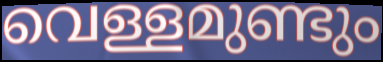
വെള്ളമുണ്ടും